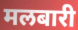
मलबारी